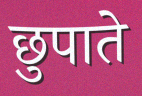
छुपाते